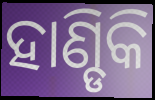
ହାଣ୍ଡିକି